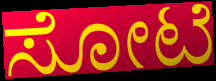
ಸೋಟೆ